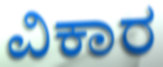
ವಿಕಾರ